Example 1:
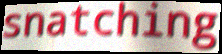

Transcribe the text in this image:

snatching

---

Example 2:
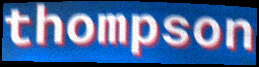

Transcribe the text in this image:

thompson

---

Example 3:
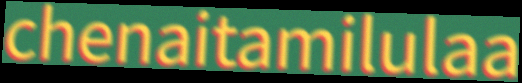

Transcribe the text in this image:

chenaitamilulaa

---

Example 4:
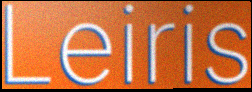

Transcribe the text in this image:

Leiris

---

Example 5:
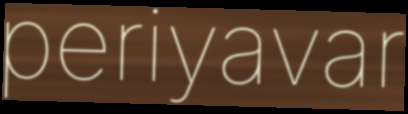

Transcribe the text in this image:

periyavar